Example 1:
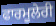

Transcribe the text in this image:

ਫਾਰਮੂਲੇਰੀ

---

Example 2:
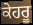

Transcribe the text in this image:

ਕੇਹਰੂ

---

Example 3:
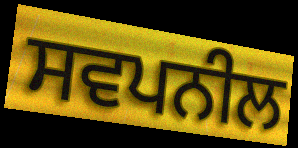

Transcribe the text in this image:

ਸਵਪਨੀਲ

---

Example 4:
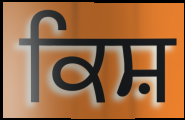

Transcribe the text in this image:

ਕਿਸ਼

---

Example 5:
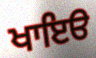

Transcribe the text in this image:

ਖਾਇੳ